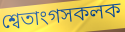
শ্বেতাংগসকলক